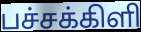
பச்சக்கிளி